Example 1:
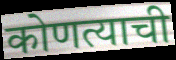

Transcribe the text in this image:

कोणत्याची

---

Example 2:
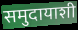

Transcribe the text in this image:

समुदायाशी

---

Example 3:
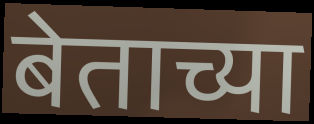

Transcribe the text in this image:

बेताच्या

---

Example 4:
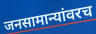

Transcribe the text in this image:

जनसामान्यांवरच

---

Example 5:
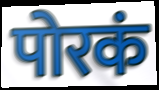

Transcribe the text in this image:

पोरकं